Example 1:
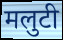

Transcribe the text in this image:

मलुटी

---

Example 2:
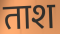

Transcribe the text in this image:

ताश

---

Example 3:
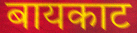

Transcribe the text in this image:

बायकाट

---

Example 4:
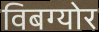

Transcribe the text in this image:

विबग्योर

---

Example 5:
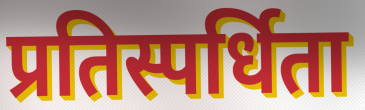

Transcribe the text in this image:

प्रतिस्पर्धिता